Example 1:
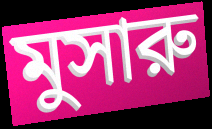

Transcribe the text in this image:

মুসারু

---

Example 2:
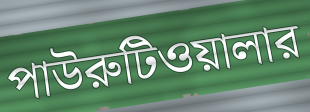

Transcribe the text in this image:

পাউরুটিওয়ালার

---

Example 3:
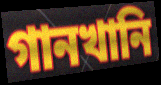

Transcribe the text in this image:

গানখানি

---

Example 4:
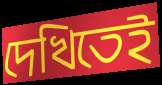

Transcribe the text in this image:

দেখিতেই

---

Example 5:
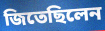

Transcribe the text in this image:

জিতেছিলেন